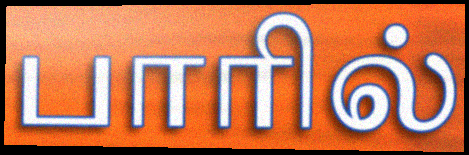
பாரில்